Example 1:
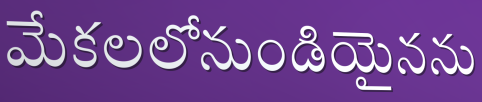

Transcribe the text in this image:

మేకలలోనుండియైనను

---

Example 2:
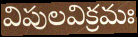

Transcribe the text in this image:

విపులవిక్రమః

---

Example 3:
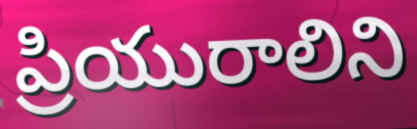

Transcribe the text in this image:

ప్రియురాలిని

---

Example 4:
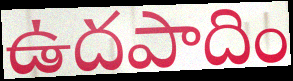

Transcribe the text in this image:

ఉదపాదిం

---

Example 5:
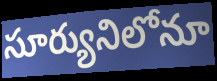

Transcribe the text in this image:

సూర్యునిలోనూ